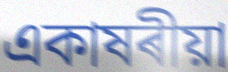
একাষৰীয়া